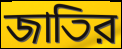
জাতির